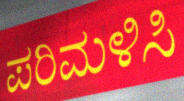
ಪರಿಮಳಿಸಿ